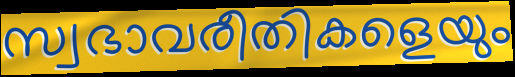
സ്വഭാവരീതികളെയും